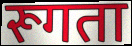
रूगता